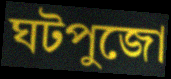
ঘটপুজো